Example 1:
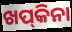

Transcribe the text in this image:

ଖପ୍‌କିନା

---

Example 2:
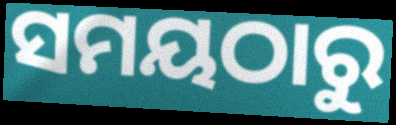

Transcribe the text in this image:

ସମୟଠାରୁ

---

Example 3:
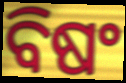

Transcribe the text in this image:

ବିଷଂ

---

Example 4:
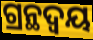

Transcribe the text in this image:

ଗ୍ରନ୍ଥଦ୍ଵୟ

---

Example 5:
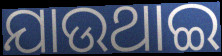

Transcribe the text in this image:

ଯାଉଥାଇ